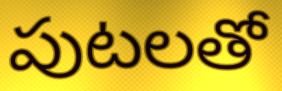
పుటలతో